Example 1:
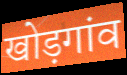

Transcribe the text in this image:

खोड़गांव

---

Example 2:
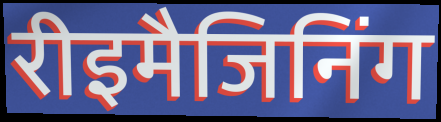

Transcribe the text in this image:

रीइमैजिनिंग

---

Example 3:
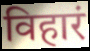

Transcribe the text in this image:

विहारं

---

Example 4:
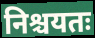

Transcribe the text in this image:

निश्चयतः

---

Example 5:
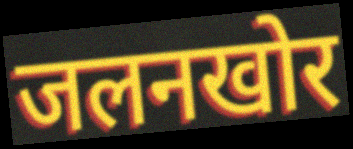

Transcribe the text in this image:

जलनखोर